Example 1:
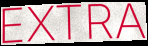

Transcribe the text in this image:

EXTRA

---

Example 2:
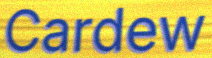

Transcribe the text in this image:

Cardew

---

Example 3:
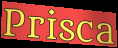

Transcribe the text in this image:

Prisca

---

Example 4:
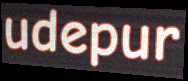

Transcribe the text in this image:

udepur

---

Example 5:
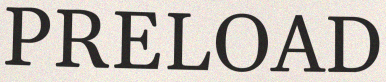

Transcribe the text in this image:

PRELOAD